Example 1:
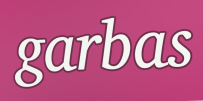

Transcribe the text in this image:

garbas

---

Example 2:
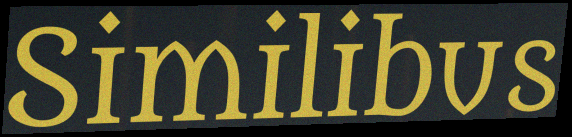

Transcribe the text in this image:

Similibus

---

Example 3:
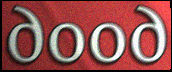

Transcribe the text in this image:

dood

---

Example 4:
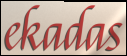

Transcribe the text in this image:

ekadas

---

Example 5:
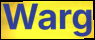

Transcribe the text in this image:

Warg